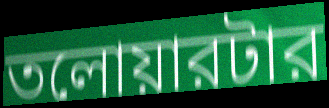
তলোয়ারটার